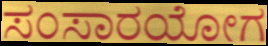
ಸಂಸಾರಯೋಗ